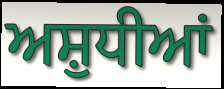
ਅਸ਼ੁਧੀਆਂ